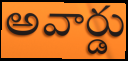
అవార్డు